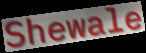
Shewale